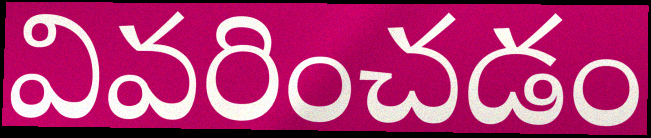
వివరించడం